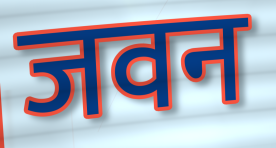
जवन